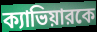
ক্যাভিয়ারকে